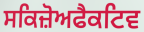
ਸਕਿਜ਼ੋਅਫੈਕਟਿਵ